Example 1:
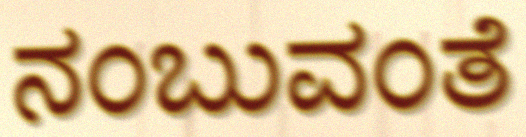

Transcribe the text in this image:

ನಂಬುವಂತೆ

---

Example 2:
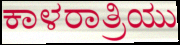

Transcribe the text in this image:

ಕಾಳರಾತ್ರಿಯು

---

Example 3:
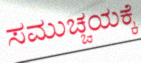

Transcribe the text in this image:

ಸಮುಚ್ಚಯಕ್ಕೆ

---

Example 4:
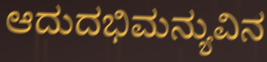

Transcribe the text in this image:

ಆದುದಭಿಮನ್ಯುವಿನ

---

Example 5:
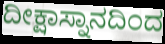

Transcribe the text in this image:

ದೀಕ್ಷಾಸ್ನಾನದಿಂದ